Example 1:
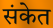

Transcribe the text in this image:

संकेत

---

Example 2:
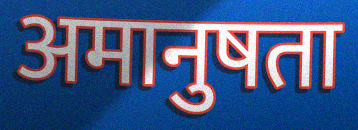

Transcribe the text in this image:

अमानुषता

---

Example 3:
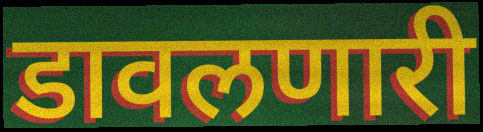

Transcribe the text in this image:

डावलणारी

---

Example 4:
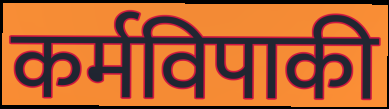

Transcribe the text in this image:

कर्मविपाकी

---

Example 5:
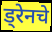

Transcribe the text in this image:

ड्रेनचे